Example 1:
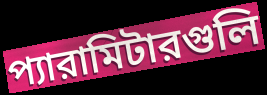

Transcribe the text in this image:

প্যারামিটারগুলি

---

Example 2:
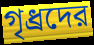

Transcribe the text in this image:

গৃধ্রদের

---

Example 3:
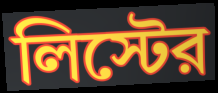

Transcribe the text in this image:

লিস্টের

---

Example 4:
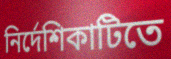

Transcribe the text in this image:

নির্দেশিকাটিতে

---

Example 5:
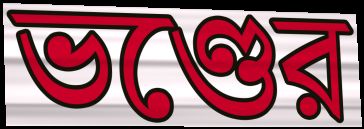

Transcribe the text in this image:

ভণ্ডের